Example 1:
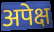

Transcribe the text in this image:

अपेक्ष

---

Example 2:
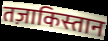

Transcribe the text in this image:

तज़ाकिस्तान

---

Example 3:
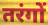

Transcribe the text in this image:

तरंगों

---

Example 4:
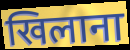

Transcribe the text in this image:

खिलाना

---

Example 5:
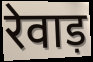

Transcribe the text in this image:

रेवाड़